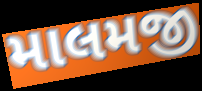
માલમજી